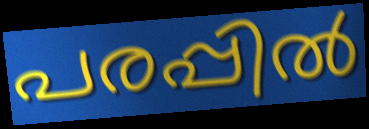
പരപ്പിൽ